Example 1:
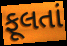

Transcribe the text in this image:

ફૂલતાં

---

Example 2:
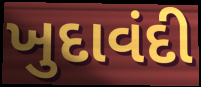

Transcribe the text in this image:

ખુદાવંદી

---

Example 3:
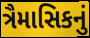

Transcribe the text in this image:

ત્રૈમાસિકનું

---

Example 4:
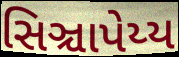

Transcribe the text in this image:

સિઞ્ચાપેય્ય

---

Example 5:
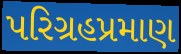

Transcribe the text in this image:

પરિગ્રહપ્રમાણ